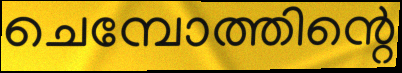
ചെമ്പോത്തിന്റെ